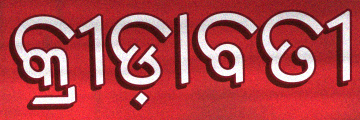
କ୍ରୀଡ଼ାବତୀ